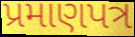
પ્રમાણપત્ર